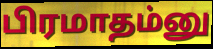
பிரமாதம்னு